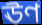
ঊণ